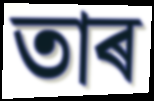
তাৰ